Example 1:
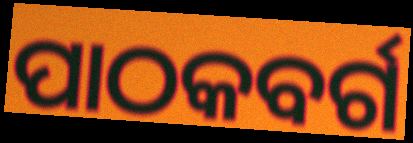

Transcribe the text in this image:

ପାଠକବର୍ଗ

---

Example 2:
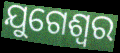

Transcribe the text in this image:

ଯୁଗେଶ୍ଵର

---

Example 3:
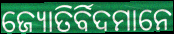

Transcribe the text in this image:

ଜ୍ୟୋତିର୍ବିଦମାନେ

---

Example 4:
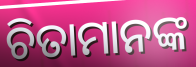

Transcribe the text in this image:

ଚିତାମାନଙ୍କ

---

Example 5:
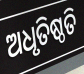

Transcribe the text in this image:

ଅଧୃତିଷ୍ଠତି